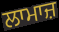
ਲਾਮਾਜ਼